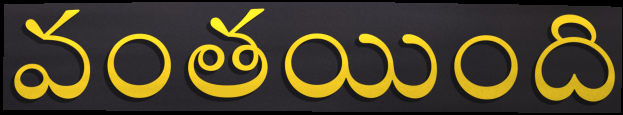
వంతయింది